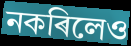
নকৰিলেও